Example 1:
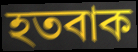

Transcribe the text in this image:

হতবাক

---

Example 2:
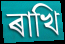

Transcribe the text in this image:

ৰাখি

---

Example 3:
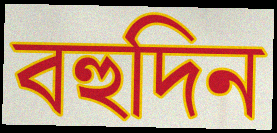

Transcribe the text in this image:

বহুদিন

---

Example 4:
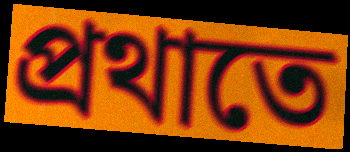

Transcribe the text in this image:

প্ৰথাতে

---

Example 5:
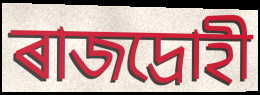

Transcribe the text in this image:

ৰাজদ্ৰোহী